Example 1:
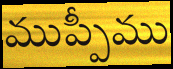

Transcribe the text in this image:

ముప్పీము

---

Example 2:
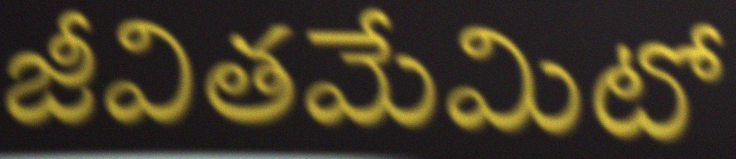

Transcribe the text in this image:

జీవితమేమిటో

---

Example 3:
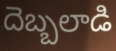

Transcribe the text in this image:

దెబ్బలాడి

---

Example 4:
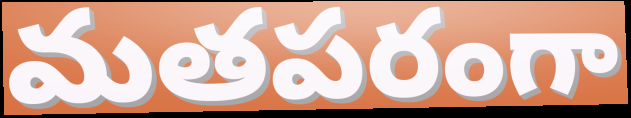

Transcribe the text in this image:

మతపరంగా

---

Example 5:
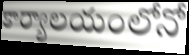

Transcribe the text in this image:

కార్యాలయంలోనో